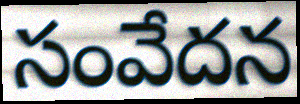
సంవేదన